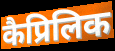
कैप्रिलिक